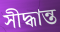
সীদ্ধান্ত